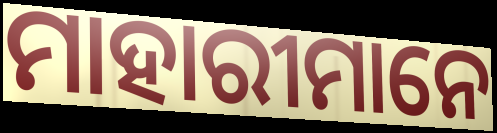
ମାହାରୀମାନେ